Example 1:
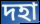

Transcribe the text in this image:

দহা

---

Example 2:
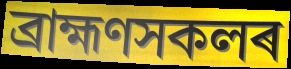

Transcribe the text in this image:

ব্ৰাহ্মণসকলৰ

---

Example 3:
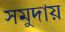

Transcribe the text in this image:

সমুদায়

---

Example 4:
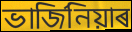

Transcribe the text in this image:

ভাৰ্জিনিয়াৰ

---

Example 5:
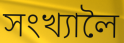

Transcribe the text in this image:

সংখ্যালৈ